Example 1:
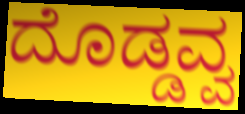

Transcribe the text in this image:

ದೊಡ್ಡವ್ವ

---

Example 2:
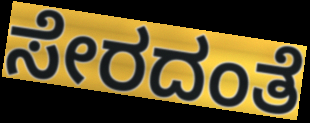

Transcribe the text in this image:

ಸೇರದಂತೆ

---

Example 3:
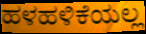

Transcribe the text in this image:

ಹಳಹಳಿಕೆಯಲ್ಲ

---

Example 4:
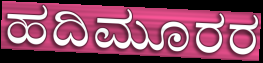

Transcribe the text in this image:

ಹದಿಮೂರರ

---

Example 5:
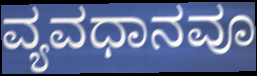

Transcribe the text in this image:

ವ್ಯವಧಾನವೂ